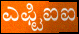
ಎಫ್ಟಿಐಐ